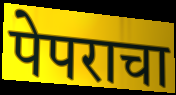
पेपराचा